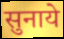
सुनाये